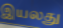
இயலது